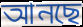
আনছে